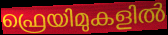
ഫ്രെയിമുകളിൽ